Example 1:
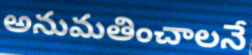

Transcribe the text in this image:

అనుమతించాలనే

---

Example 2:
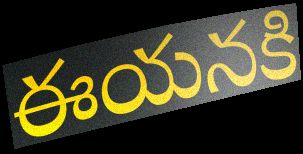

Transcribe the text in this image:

ఈయనకి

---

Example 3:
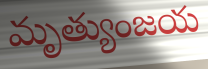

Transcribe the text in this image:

మృత్యుంజయ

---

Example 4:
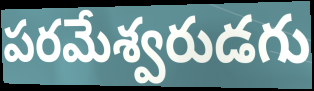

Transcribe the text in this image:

పరమేశ్వరుడగు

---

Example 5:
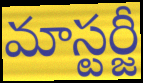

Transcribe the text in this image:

మాస్టర్జీ